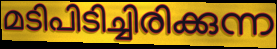
മടിപിടിച്ചിരിക്കുന്ന